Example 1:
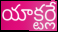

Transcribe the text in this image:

యాక్టర్లే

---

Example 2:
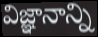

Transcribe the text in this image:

విజ్ఞానాన్ని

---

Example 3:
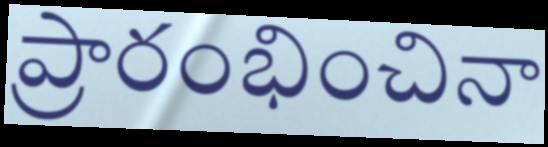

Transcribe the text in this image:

ప్రారంభించినా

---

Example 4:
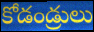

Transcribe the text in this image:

కోడండ్రులు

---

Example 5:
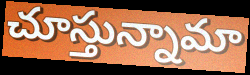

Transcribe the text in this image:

చూస్తున్నామా